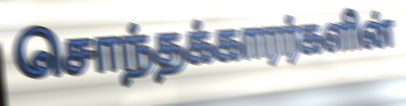
சொந்தக்காரர்களின்